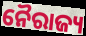
ନୈରାଜ୍ୟ